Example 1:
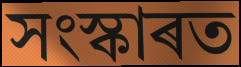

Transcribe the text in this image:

সংস্কাৰত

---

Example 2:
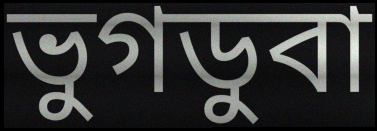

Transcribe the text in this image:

ভুগডুবা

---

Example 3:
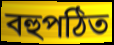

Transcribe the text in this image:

বহুপঠিত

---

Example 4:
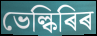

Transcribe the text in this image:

ভেল্কিৰিৰ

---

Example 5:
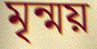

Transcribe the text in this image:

মৃন্ময়